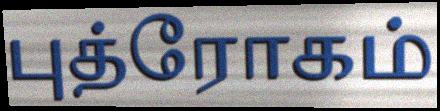
புத்ரோகம்